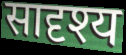
सादृश्य